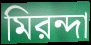
মিরন্দা